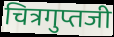
चित्रगुप्तजी